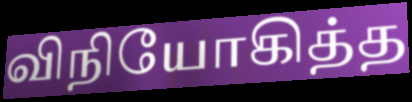
விநியோகித்த